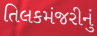
તિલકમંજરીનું